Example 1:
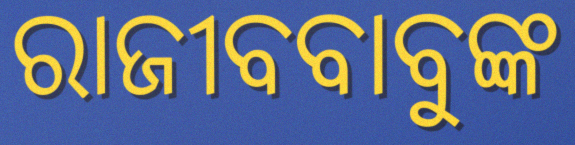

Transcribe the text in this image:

ରାଜୀବବାବୁଙ୍କ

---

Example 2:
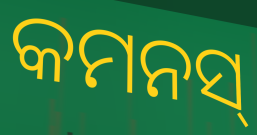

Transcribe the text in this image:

କମନସ୍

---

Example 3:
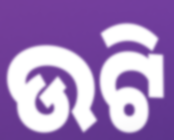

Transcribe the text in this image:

ଉଟି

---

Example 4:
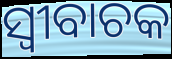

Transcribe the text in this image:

ସ୍ବୀବାଚକ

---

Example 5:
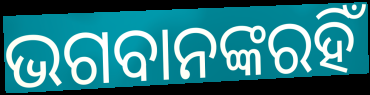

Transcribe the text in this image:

ଭଗବାନଙ୍କରହିଁ